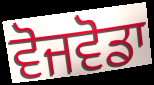
ਵੋਜਵੋਡਾ